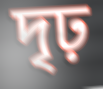
দৃঢ়